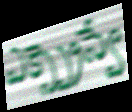
ఎక్స్ప్రెస్వే